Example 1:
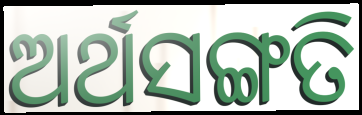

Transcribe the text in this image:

ଅର୍ଥସଙ୍ଗତି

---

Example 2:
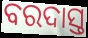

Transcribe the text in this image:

ବରଦାସ୍ତ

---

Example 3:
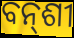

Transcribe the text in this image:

ବନ୍‍ଶୀ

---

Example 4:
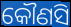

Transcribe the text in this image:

କୌଣସି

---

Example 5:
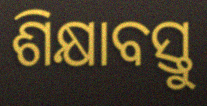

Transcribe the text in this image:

ଶିକ୍ଷାବସ୍ତୁ